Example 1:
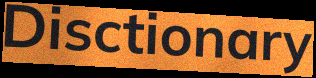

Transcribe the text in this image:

Disctionary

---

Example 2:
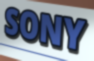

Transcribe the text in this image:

SONY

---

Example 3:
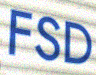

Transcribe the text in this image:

FSD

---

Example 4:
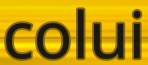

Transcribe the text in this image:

colui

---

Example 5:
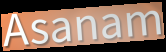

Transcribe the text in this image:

Asanam